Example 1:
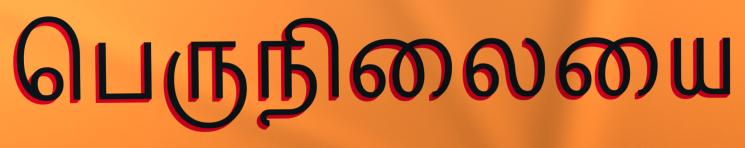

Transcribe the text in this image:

பெருநிலையை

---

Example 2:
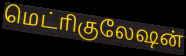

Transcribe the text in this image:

மெட்ரிகுலேஷன்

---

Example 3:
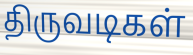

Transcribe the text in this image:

திருவடிகள்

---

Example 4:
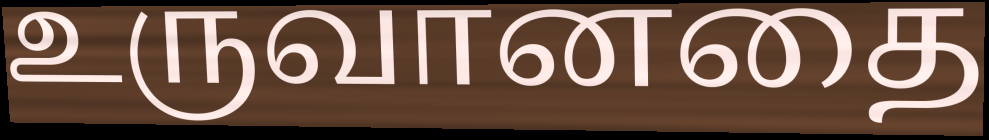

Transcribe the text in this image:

உருவானதை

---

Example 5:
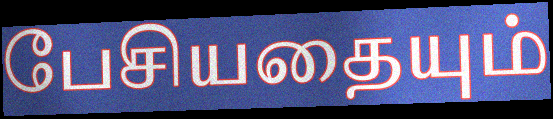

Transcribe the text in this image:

பேசியதையும்